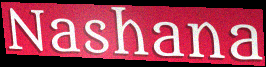
Nashana